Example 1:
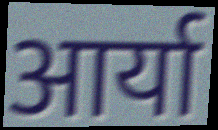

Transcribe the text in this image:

आर्या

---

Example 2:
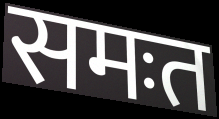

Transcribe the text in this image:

समःत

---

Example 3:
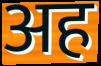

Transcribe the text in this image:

अह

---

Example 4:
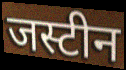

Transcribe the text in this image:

जस्टीन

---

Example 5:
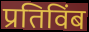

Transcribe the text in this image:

प्रतिविंब